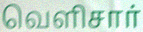
வெளிசார்